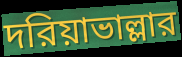
দরিয়াভাল্লার